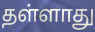
தள்ளாது